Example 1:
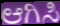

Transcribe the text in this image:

ಆಗಿಸಿ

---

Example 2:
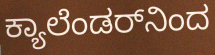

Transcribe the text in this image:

ಕ್ಯಾಲೆಂಡರ್‌ನಿಂದ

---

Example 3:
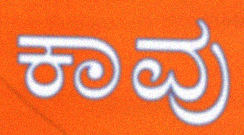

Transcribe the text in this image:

ಕಾವು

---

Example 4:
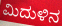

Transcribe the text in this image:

ಮಿದುಳಿನ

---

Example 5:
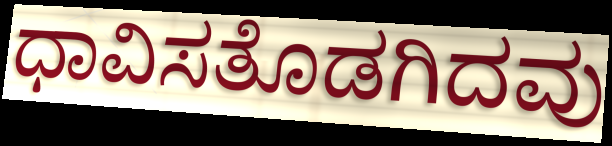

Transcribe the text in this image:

ಧಾವಿಸತೊಡಗಿದವು